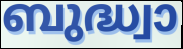
ബുദ്ധ്വാ